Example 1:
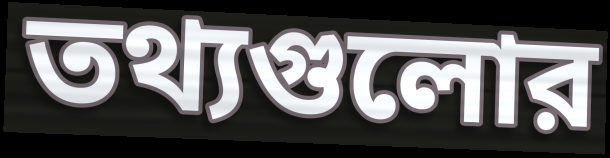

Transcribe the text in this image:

তথ্যগুলোর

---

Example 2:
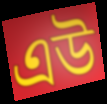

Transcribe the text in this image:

এউ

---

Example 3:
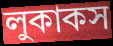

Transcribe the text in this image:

লুকাকস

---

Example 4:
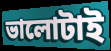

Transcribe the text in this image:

ভালোটাই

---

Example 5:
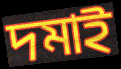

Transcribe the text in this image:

দমাই